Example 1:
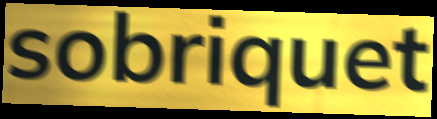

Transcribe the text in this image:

sobriquet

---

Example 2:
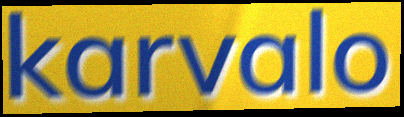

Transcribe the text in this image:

karvalo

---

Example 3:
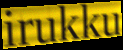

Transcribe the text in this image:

irukku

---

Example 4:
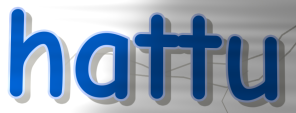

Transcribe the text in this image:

hattu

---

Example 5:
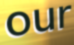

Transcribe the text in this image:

our